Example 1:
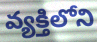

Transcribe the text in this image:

వ్యక్తిలోని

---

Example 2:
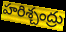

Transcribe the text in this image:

హరిశ్చంద్రు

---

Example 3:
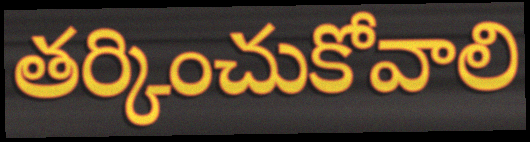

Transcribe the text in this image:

తర్కించుకోవాలి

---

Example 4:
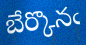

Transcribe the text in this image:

బేర్కొనఁ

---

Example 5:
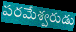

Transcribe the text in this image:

పరమేశ్వరుడు